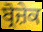
ਬ੍ਰੋਜ਼ੇਕ